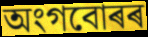
অংগবোৰৰ